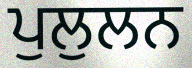
ਪੁਲੁਲਨ